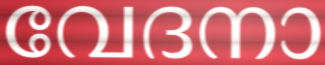
വേദനാ